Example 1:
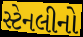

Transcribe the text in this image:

સ્ટેનલીનો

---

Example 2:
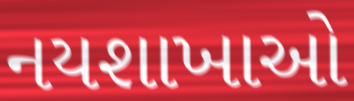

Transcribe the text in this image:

નયશાખાઓ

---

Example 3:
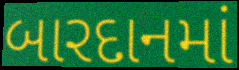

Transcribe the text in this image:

બારદાનમાં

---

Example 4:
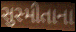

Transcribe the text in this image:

સુસ્મીતાના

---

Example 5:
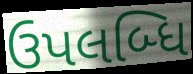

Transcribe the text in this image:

ઉપલબ્ધિ